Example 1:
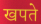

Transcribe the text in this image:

खपते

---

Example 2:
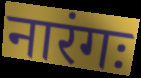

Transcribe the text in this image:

नारंगः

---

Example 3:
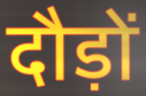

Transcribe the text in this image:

दौड़ों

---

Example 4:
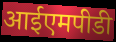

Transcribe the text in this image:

आईएमपीडी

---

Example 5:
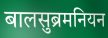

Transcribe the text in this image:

बालसुब्रमनियन